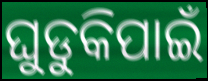
ଘୁଡୁକିପାଇଁ